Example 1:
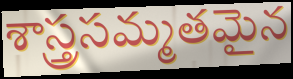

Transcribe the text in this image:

శాస్త్రసమ్మతమైన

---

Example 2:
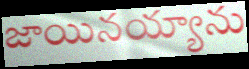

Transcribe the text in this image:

జాయినయ్యాను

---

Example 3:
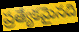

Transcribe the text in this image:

ప్రత్యేకమైనది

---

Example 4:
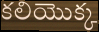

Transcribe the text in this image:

కలియొక్క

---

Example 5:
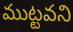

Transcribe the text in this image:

ముట్టవని